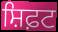
ਸ਼ਿਫ਼ਟ